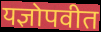
यज्ञोपवीत